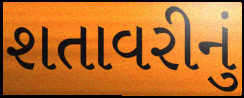
શતાવરીનું